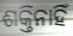
ଶକ୍ତିନାହିଁ